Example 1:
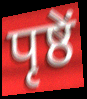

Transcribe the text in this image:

पृष्ठें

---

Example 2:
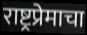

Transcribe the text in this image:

राष्ट्रप्रेमाचा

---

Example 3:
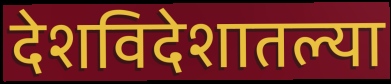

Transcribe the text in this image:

देशविदेशातल्या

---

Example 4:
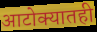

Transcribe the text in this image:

आटोक्यातही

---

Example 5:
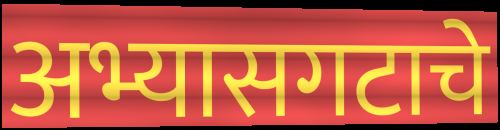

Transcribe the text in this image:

अभ्यासगटाचे